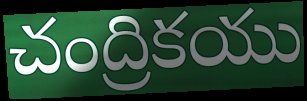
చంద్రికయు